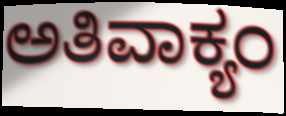
ಅತಿವಾಕ್ಯಂ